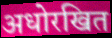
अधोरखित